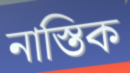
নাস্তিক